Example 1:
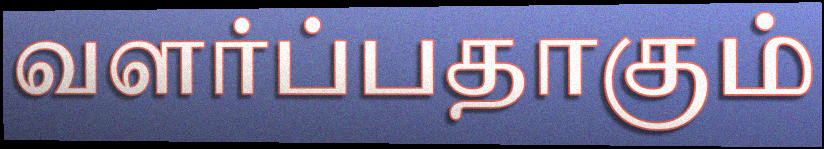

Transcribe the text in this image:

வளர்ப்பதாகும்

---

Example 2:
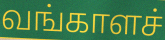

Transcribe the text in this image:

வங்காளச்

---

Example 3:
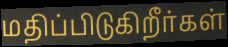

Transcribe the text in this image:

மதிப்பிடுகிறீர்கள்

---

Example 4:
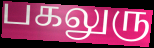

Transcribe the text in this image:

பகலுரு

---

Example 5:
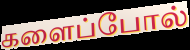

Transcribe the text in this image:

களைப்போல்